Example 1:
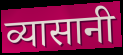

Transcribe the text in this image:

व्यासानी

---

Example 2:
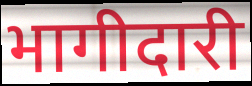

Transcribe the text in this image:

भागीदारी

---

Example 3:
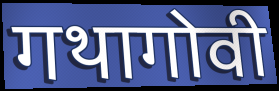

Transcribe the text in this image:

गथागोवी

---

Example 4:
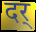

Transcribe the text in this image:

दर्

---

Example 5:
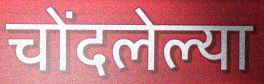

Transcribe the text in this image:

चोंदलेल्या